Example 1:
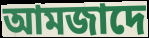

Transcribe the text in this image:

আমজাদে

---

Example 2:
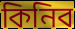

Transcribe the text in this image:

কিনিব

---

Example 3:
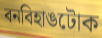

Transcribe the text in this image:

বনবিহাঙটোক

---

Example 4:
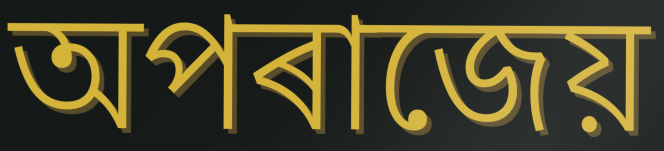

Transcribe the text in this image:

অপৰাজেয়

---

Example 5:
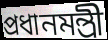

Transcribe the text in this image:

প্ৰধানমন্ত্ৰী